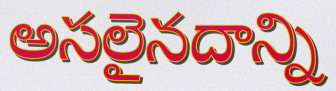
అసలైనదాన్ని